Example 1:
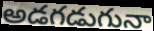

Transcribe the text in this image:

అడగడుగునా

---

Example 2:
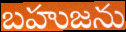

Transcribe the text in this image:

బహుజను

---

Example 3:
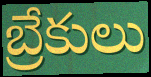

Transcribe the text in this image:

బ్రేకులు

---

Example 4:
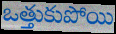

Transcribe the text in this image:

ఒత్తుకుపోయి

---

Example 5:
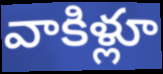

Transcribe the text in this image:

వాకిళ్లూ